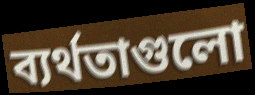
ব্যর্থতাগুলো